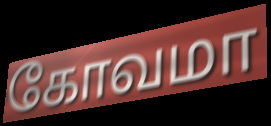
கோவமா